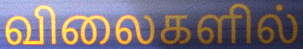
விலைகளில்